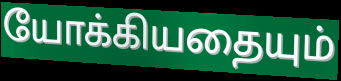
யோக்கியதையும்